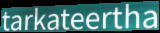
tarkateertha